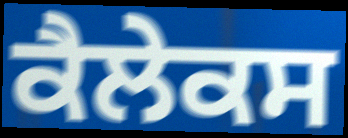
ਕੈਲੇਕਸ